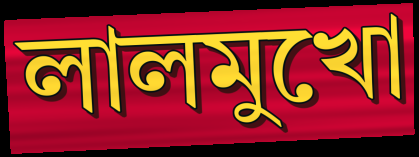
লালমুখো